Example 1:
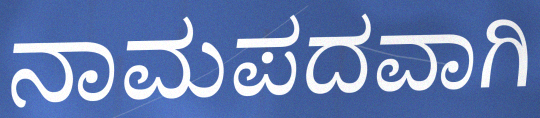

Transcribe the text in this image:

ನಾಮಪದವಾಗಿ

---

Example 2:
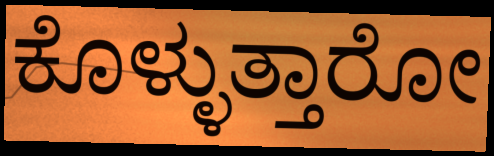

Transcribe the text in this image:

ಕೊಳ್ಳುತ್ತಾರೋ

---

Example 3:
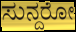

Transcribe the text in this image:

ಸುನ್ದರೋ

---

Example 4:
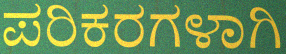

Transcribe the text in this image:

ಪರಿಕರಗಳಾಗಿ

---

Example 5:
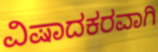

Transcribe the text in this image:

ವಿಷಾದಕರವಾಗಿ